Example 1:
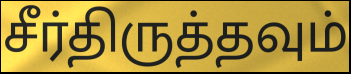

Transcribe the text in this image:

சீர்திருத்தவும்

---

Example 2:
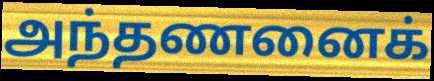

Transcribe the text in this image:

அந்தணனைக்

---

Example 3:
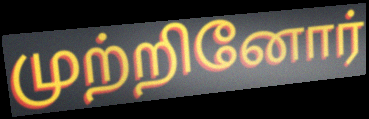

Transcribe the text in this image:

முற்றினோர்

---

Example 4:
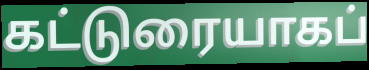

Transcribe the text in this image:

கட்டுரையாகப்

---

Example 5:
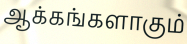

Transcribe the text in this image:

ஆக்கங்களாகும்